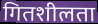
गितशीलता